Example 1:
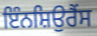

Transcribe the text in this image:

ਇੰਨਸ਼ਿਉਰੈਂਸ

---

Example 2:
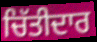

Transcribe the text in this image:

ਚਿੱਤੀਦਾਰ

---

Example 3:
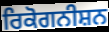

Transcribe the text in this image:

ਰਿਕੋਗਨੀਸ਼ਨ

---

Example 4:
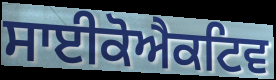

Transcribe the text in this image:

ਸਾਈਕੋਐਕਟਿਵ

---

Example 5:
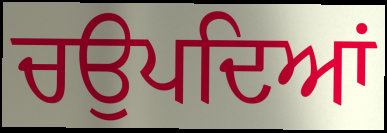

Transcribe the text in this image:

ਚਉਪਦਿਆਂ